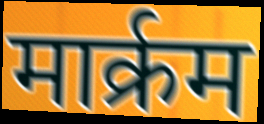
मार्क्रम